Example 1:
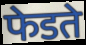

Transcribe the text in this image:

फेडते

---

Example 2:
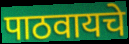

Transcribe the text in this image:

पाठवायचे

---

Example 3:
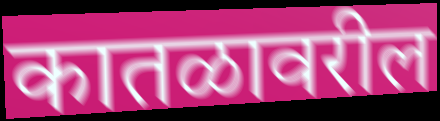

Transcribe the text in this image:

कातळावरील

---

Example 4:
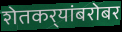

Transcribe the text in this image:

शेतकर्‍यांबरोबर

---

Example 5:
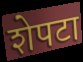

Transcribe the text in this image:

शेपटा